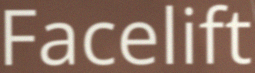
Facelift